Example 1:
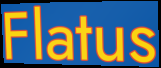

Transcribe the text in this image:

Flatus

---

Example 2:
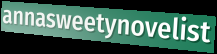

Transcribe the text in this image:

annasweetynovelist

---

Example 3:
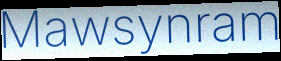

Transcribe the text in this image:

Mawsynram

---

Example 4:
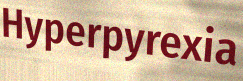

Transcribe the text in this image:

Hyperpyrexia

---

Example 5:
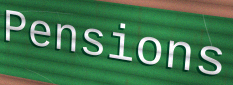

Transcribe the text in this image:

Pensions